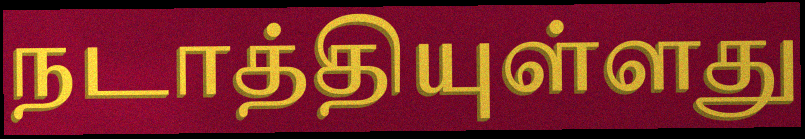
நடாத்தியுள்ளது